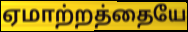
ஏமாற்றத்தையே